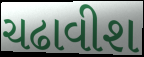
ચઢાવીશ